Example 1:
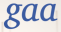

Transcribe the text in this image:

gaa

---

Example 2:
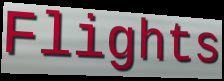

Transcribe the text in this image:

Flights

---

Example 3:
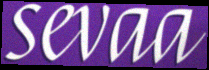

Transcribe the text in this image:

sevaa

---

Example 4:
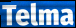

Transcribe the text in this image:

Telma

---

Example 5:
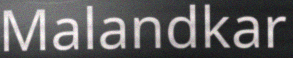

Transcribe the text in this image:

Malandkar